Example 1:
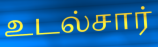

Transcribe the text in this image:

உடல்சார்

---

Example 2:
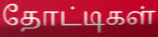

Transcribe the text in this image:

தோட்டிகள்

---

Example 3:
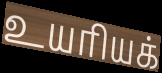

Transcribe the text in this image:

உயரியக்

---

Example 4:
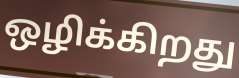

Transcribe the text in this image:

ஒழிக்கிறது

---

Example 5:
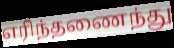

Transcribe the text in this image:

எரிந்தணைந்து